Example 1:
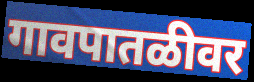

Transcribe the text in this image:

गावपातळीवर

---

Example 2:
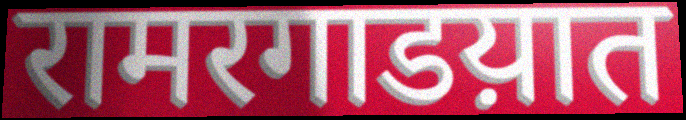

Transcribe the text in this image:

रामरगाडय़ात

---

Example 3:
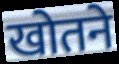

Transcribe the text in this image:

खोतने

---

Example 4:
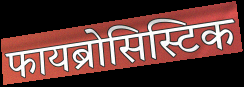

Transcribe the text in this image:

फायब्रोसिस्टिक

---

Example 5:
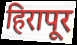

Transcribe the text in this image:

हिरापूर